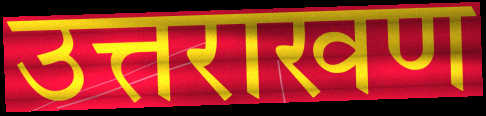
उत्तराखण